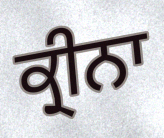
ਕ੍ਰੀਨਾ